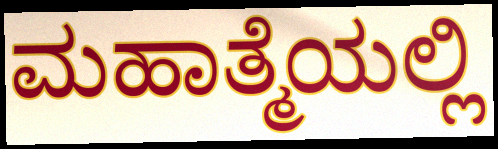
ಮಹಾತ್ಮೆಯಲ್ಲಿ